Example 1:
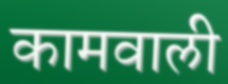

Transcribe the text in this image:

कामवाली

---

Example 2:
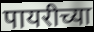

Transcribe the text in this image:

पायरीच्या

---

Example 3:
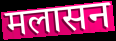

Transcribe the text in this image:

मलासन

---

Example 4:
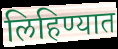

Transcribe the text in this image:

लिहिण्यात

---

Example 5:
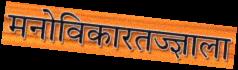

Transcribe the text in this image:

मनोविकारतज्ज्ञाला